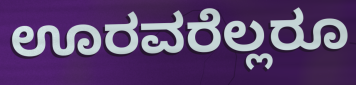
ಊರವರೆಲ್ಲರೂ